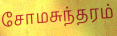
சோமசுந்தரம்